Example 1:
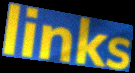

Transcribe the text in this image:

links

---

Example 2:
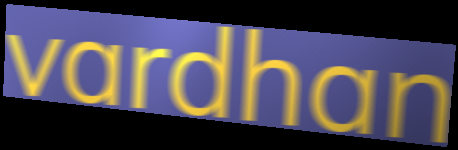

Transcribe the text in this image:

vardhan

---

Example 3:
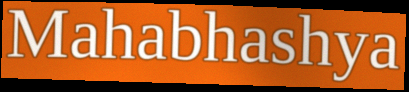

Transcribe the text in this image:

Mahabhashya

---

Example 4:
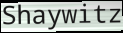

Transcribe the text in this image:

Shaywitz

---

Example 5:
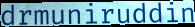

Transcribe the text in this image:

drmuniruddin